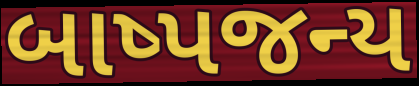
બાષ્પજન્ય